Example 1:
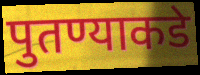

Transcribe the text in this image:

पुतण्याकडे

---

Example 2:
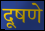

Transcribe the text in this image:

दूषणे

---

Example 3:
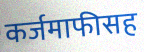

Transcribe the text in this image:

कर्जमाफीसह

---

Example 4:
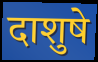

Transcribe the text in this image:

दाशुषे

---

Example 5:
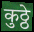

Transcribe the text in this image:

कुठ्ठे